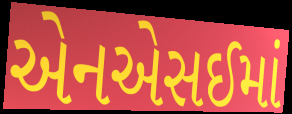
એનએસઈમાં